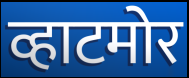
व्हाटमोर